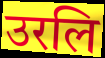
उरलि